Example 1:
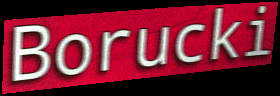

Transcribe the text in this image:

Borucki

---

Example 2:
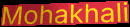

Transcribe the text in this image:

Mohakhali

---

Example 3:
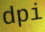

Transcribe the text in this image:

dpi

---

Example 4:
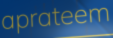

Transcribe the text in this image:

aprateem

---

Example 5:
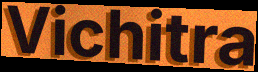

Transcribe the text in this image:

Vichitra